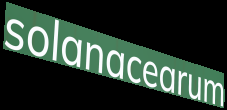
solanacearum